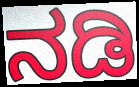
ನಡಿ